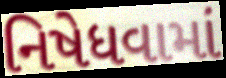
નિષેધવામાં